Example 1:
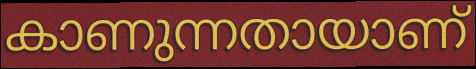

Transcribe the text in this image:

കാണുന്നതായാണ്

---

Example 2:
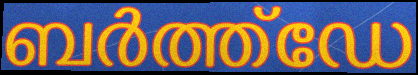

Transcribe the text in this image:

ബർത്ത്ഡേ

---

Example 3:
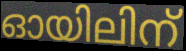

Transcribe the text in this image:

ഓയിലിന്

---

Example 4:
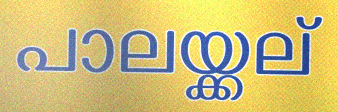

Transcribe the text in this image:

പാലയ്ക്കല്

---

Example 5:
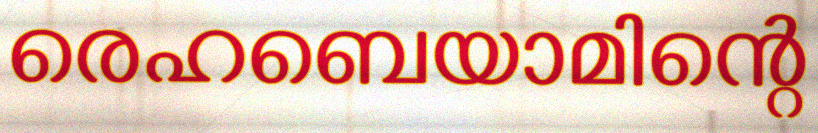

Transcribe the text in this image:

രെഹബെയാമിന്റെ